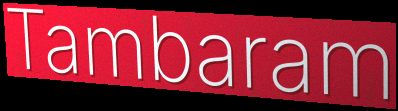
Tambaram